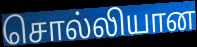
சொல்லியான